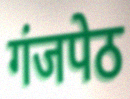
गंजपेठ